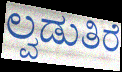
ಲ್ವಡುತಿರೆ